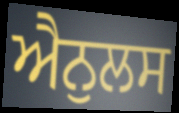
ਐਨੁਲਸ